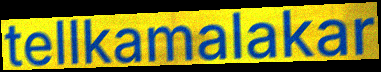
tellkamalakar